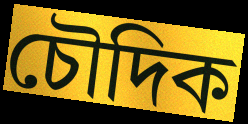
চৌদিক